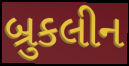
બ્રુકલીન